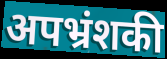
अपभ्रंशकी